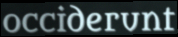
occiderunt